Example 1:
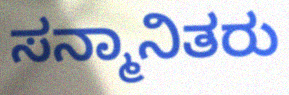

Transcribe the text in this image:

ಸನ್ಮಾನಿತರು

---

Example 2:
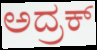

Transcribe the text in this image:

ಅದ್ರಕ್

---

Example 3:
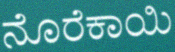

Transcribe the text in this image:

ನೊರೆಕಾಯಿ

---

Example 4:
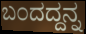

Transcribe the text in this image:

ಬಂದದ್ದನ್ನ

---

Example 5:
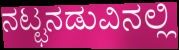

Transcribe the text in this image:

ನಟ್ಟನಡುವಿನಲ್ಲಿ